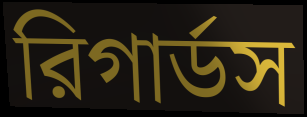
রিগার্ডস